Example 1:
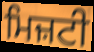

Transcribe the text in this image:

ਮਿਜ਼ਟੀ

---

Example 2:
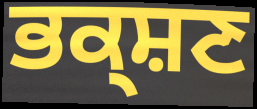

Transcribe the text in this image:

ਭਕ੍ਸ਼ਣ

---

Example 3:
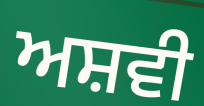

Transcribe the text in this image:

ਅਸ਼ਵੀ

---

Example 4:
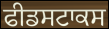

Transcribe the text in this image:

ਫੀਡਸਟਾਕਸ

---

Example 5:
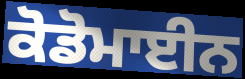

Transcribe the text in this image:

ਕੋਡੋਮਾਈਨ